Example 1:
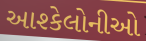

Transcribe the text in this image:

આશ્કેલોનીઓ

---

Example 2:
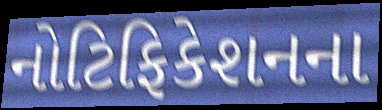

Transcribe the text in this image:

નોટિફિકેશનના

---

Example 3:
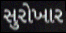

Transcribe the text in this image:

સુરોખાર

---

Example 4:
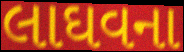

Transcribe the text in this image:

લાઘવના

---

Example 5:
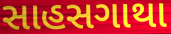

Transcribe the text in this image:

સાહસગાથા